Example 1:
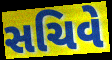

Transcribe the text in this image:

સચિવે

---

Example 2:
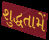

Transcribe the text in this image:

શુદ્ધતામેં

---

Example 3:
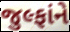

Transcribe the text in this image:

જુલ્ફાંને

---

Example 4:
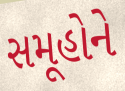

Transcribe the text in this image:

સમૂહોને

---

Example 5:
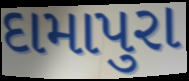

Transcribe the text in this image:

દામાપુરા